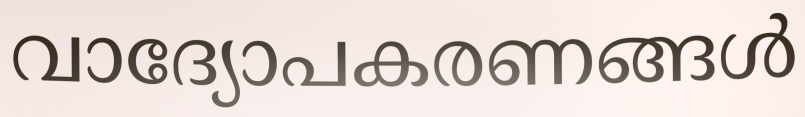
വാദ്യോപകരണങ്ങൾ